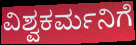
ವಿಶ್ವಕರ್ಮನಿಗೆ